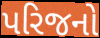
પરિજનો